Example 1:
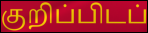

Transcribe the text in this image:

குறிப்பிடப்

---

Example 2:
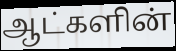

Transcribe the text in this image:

ஆட்களின்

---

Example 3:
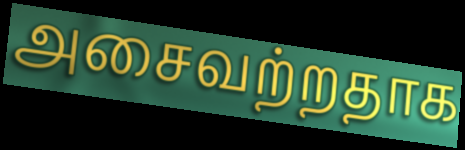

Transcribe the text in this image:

அசைவற்றதாக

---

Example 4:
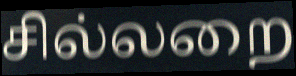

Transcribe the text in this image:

சில்லறை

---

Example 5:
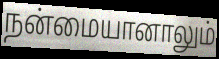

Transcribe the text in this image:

நன்மையானாலும்